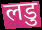
लडु